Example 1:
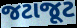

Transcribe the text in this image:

જટાજૂટ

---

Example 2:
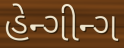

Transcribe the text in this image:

હેન્ગીન્ગ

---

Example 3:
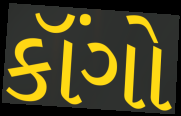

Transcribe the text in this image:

કૉંગો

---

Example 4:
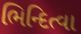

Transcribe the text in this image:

ભિન્દિત્વા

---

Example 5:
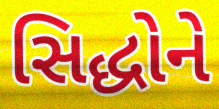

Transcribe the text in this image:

સિદ્ધોને